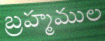
బ్రహ్మముల